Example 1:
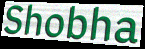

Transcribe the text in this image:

Shobha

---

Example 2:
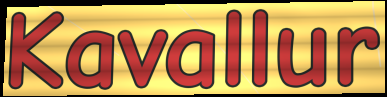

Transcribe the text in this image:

Kavallur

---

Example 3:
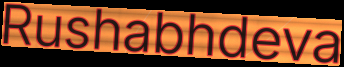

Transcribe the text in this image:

Rushabhdeva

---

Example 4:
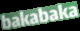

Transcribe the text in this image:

bakabaka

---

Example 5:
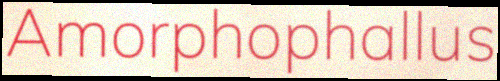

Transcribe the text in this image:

Amorphophallus